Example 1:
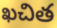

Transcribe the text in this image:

ఖచిత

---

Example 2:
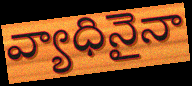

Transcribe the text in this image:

వ్యాధినైనా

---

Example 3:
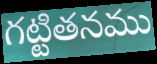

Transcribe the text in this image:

గట్టితనము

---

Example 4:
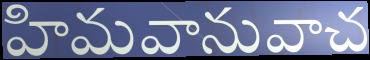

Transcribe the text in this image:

హిమవానువాచ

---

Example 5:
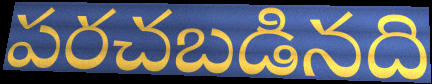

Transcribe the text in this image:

పరచబడినది